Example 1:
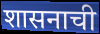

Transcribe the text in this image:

शासनाची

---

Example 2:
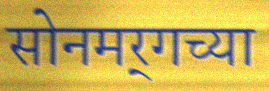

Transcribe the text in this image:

सोनमर्गच्या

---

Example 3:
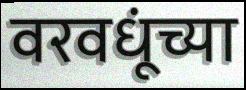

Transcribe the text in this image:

वरवधूंच्या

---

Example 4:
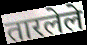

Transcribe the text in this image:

तारलेले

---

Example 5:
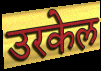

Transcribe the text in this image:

उरकेल